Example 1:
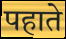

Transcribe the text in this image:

पहाते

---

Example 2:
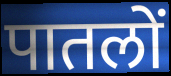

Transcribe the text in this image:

पातलों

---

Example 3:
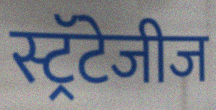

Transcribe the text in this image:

स्ट्रॅटेजीज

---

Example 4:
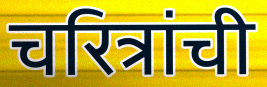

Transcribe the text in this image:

चरित्रांची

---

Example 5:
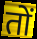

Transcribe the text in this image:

तों